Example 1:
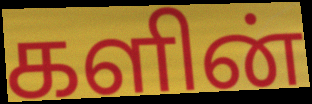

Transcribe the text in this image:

களின்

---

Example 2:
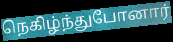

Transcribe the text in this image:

நெகிழ்ந்துபோனார்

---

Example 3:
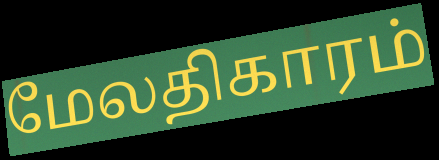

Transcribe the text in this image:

மேலதிகாரம்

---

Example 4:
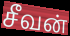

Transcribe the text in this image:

சீவன்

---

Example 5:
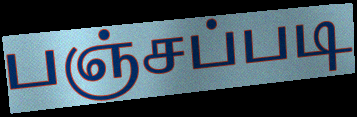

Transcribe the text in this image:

பஞ்சப்படி